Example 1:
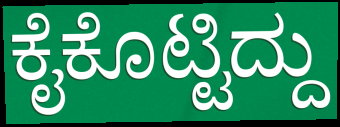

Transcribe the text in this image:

ಕೈಕೊಟ್ಟಿದ್ದು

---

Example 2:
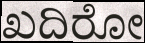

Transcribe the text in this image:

ಖದಿರೋ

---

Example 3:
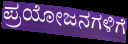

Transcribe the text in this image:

ಪ್ರಯೋಜನಗಳಿಗೆ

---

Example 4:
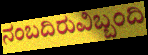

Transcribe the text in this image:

ನಂಬದಿರುವಿಬ್ಬಂದಿ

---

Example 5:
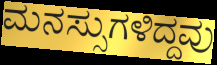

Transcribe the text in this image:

ಮನಸ್ಸುಗಳಿದ್ದವು